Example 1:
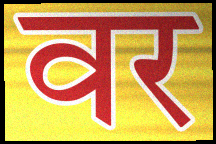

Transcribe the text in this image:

वर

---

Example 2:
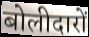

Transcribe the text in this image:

बोलीदारों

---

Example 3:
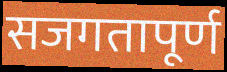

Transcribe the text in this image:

सजगतापूर्ण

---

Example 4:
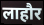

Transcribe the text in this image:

लाहौर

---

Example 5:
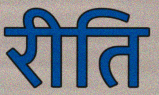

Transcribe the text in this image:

रीति